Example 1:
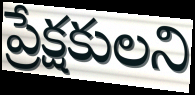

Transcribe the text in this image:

ప్రేక్షకులని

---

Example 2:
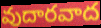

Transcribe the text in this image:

వుదారవాద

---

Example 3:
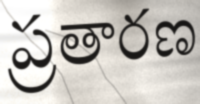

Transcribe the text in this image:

ప్రతారణ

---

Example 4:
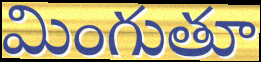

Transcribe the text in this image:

మింగుతూ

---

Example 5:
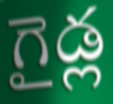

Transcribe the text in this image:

గైడ్ల